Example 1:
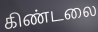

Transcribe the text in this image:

கிண்டலை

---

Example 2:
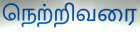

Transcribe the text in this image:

நெற்றிவரை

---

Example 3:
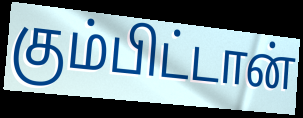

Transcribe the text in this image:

கும்பிட்டான்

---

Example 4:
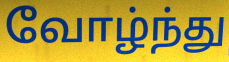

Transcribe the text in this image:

வோழ்ந்து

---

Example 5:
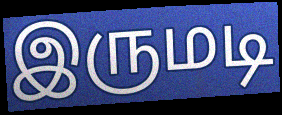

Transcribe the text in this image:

இருமடி